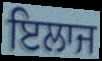
ਇਲਾਜ